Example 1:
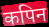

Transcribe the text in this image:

कपिन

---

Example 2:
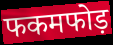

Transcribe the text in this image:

फकमफोड़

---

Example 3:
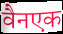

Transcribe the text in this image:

वैनएक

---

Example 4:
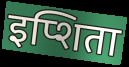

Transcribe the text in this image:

इप्शिता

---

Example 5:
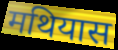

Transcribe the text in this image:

मथियास